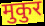
मुकुर